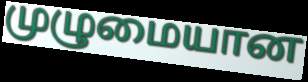
முழுமையான